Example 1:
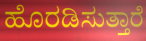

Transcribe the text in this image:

ಹೊರಡಿಸುತ್ತಾರೆ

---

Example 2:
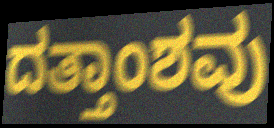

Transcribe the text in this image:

ದತ್ತಾಂಶವು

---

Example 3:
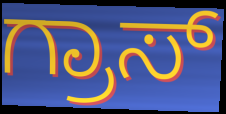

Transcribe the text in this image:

ಗ್ರಾಸ್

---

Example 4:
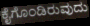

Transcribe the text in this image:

ಕೈಗೊಂಡಿರುವುದು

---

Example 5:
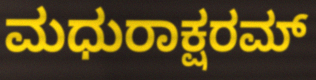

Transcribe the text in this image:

ಮಧುರಾಕ್ಷರಮ್